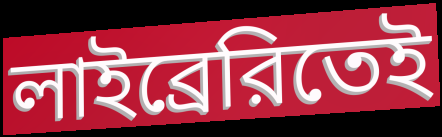
লাইব্রেরিতেই